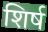
शिर्ष